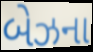
બેઝના